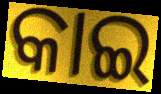
କାଇ